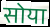
सोया